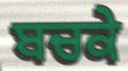
ਬਚਕੇ